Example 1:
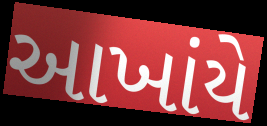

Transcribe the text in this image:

આખાંયે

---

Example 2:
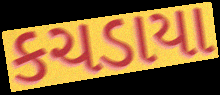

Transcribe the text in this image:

કચડાયા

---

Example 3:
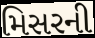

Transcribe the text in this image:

મિસરની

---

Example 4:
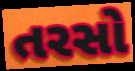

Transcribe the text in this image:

તરસો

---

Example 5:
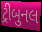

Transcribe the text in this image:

ટ્રીબુનલ